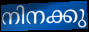
നിനക്കു